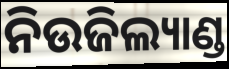
ନିଉଜିଲ୍ୟାଣ୍ଡ